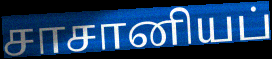
சாசானியப்